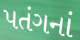
પતંગનાં